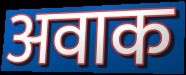
अवाक